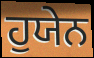
ਹੁਯੇਨ